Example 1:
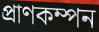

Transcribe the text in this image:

প্রাণকম্পন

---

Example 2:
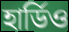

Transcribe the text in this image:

হার্ডিও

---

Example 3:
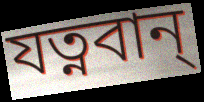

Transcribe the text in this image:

যত্নবান্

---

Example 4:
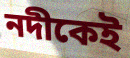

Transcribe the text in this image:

নদীকেই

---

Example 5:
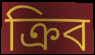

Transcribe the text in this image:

ক্রিব